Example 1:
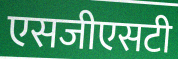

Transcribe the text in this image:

एसजीएसटी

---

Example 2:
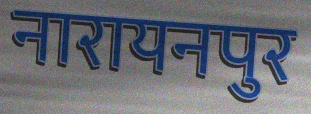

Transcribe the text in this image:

नारायनपुर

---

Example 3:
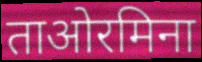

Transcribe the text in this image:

ताओरमिना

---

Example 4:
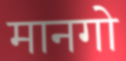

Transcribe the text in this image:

मानगो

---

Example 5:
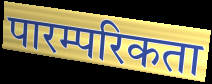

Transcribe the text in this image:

पारम्परिकता